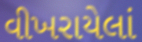
વીખરાયેલાં